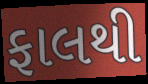
ફાલથી